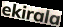
ekirala